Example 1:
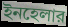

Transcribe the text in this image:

ইনহেলার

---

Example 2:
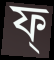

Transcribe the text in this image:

ফ্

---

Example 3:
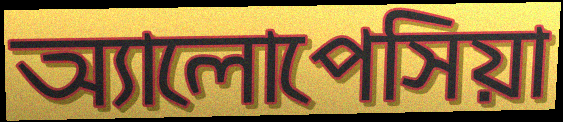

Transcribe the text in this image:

অ্যালোপেসিয়া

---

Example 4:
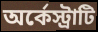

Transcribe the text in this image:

অর্কেস্ট্রাটি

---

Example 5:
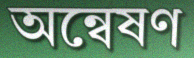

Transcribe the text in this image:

অন্বেষণ